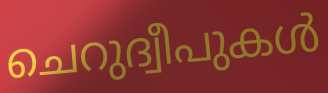
ചെറുദ്വീപുകൾ